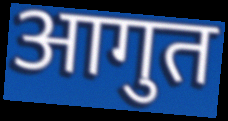
आगुत